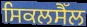
ਸਿਕਲਸੈੱਲ